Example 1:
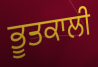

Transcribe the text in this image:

ਭੂਤਕਾਲੀ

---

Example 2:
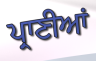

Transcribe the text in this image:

ਪ੍ਰਾਣੀਆਂ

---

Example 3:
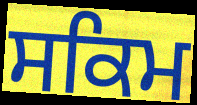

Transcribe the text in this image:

ਸਕਿਮ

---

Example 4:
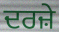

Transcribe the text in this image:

ਦਰਜ਼ੇ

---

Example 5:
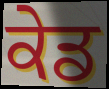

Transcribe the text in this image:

ਕੇਡ